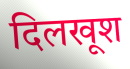
दिलखूश